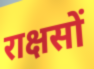
राक्षसों